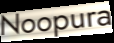
Noopura